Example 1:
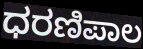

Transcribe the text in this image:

ಧರಣಿಪಾಲ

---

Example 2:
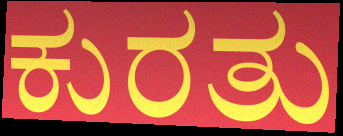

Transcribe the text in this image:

ಕುರತು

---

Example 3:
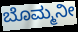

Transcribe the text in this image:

ಬೊಮ್ಮನೀ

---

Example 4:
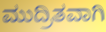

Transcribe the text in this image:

ಮುದ್ರಿತವಾಗಿ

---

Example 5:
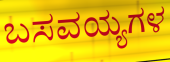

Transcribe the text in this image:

ಬಸವಯ್ಯಗಳ